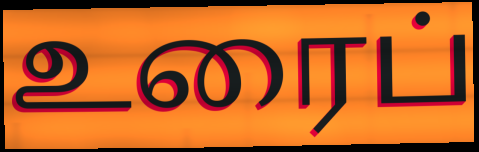
உரைப்